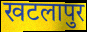
खटलापुर